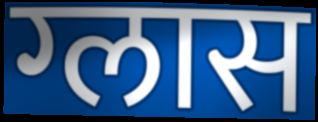
ग्लास